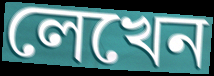
লেখেন